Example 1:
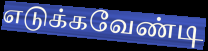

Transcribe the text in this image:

எடுக்கவேண்டி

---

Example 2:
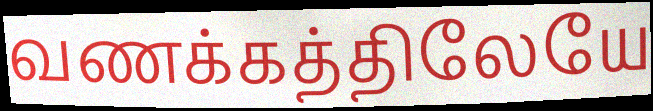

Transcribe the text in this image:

வணக்கத்திலேயே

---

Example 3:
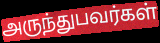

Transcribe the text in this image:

அருந்துபவர்கள்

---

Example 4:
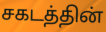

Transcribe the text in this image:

சகடத்தின்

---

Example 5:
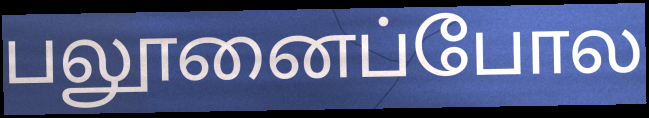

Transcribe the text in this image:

பலூனைப்போல